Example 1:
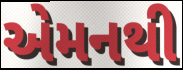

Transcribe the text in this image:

એમનથી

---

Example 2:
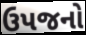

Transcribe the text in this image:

ઉપજનો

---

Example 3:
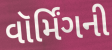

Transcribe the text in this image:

વૉર્મિંગની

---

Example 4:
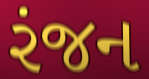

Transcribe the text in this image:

રંજન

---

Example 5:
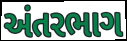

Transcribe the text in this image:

અંતરભાગ